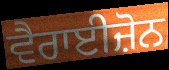
ਵੈਰਾਈਜ਼ੋਨ